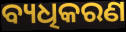
ବ୍ୟଧିକରଣ